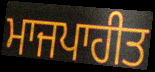
ਮਾਜਪਾਹੀਤ